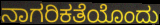
ನಾಗರಿಕತೆಯೊಂದು